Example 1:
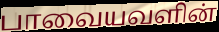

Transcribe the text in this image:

பாவையவளின்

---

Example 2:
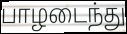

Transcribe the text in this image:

பாழடைந்து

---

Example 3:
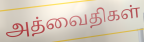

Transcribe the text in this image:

அத்வைதிகள்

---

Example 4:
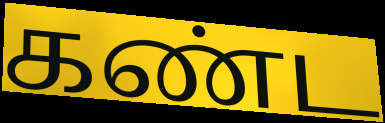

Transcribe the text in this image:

கண்ட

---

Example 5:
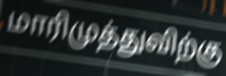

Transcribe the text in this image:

மாரிமுத்துவிற்கு